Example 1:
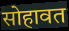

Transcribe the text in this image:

सोहावत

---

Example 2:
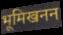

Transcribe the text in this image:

भूमिखनन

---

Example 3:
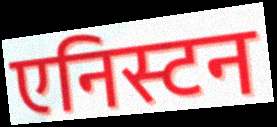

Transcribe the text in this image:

एनिस्टन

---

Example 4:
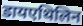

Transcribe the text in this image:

डायएथिलिन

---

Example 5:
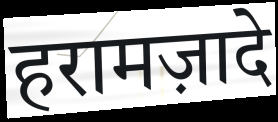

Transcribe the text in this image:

हरामज़ादे